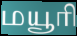
மயூரி